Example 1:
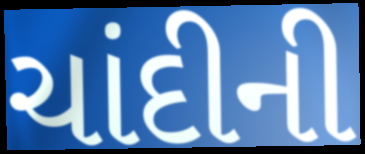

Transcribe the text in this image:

ચાંદીની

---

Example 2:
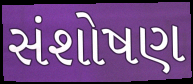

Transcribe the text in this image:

સંશોષણ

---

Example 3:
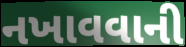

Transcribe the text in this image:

નખાવવાની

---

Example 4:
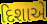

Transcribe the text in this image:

દિશાએ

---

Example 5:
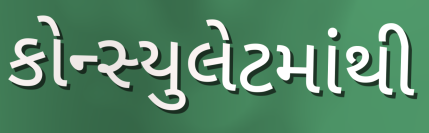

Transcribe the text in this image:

કોન્સ્યુલેટમાંથી